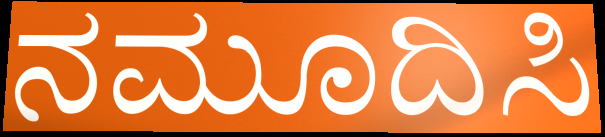
ನಮೂದಿಸಿ